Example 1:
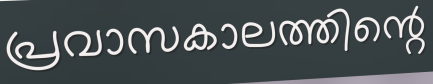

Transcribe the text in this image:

പ്രവാസകാലത്തിന്റെ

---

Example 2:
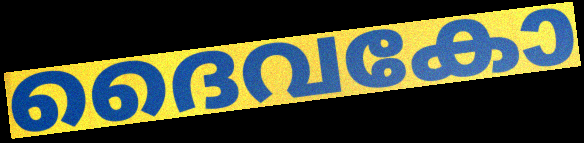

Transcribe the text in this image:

ദൈവകോ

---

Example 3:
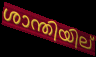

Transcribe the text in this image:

ശാന്തിയില്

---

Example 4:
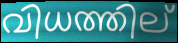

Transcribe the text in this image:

വിധത്തില്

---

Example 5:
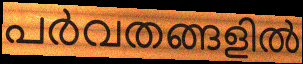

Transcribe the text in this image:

പർവതങ്ങളിൽ